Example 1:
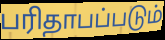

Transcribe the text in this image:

பரிதாபப்படும்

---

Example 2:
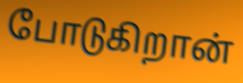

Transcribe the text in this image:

போடுகிறான்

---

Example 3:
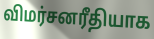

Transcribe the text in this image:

விமர்சனரீதியாக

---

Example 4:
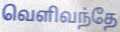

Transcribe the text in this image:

வெளிவந்தே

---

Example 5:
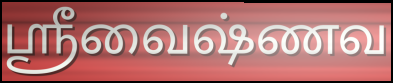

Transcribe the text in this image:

ஸ்ரீவைஷ்ணவ